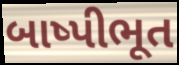
બાષ્પીભૂત